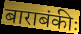
बाराबंकीः